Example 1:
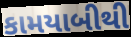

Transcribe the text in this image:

કામયાબીથી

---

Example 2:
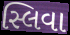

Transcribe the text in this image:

સ્લિવા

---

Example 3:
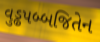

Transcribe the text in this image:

વુડ્ઢપબ્બજિતેન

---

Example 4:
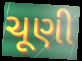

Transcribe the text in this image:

ચૂણી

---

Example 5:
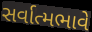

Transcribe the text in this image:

સર્વાત્મભાવે